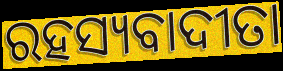
ରହସ୍ୟବାଦୀତା